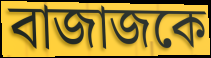
বাজাজকে